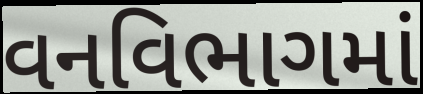
વનવિભાગમાં